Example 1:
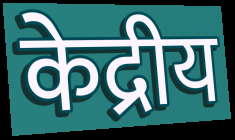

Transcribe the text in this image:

केद्रीय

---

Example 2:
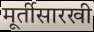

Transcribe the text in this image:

मूर्तीसारखी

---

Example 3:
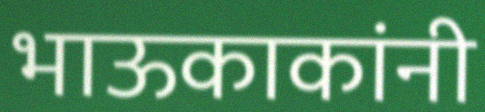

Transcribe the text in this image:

भाऊकाकांनी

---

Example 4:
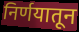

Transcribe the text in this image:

निर्णयातून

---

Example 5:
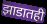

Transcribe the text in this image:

झाडातही